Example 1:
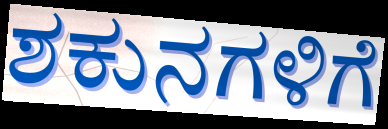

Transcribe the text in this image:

ಶಕುನಗಳಿಗೆ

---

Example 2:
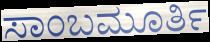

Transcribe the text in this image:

ಸಾಂಬಮೂರ್ತಿ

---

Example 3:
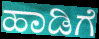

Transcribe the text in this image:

ಹಾಡಿಗೆ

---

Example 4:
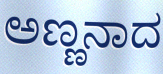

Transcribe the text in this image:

ಅಣ್ಣನಾದ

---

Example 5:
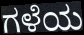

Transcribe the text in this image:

ಗಳೆಯ